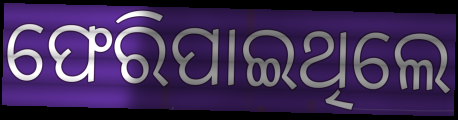
ଫେରିପାଇଥିଲେ